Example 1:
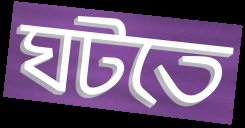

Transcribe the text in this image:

ঘটতে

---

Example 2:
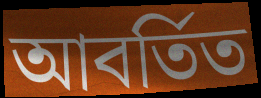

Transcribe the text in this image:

আবর্তিত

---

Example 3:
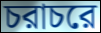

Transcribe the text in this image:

চরাচরে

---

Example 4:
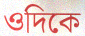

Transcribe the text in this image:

ওদিকে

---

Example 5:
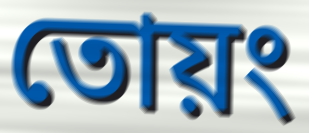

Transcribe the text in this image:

তোয়ং